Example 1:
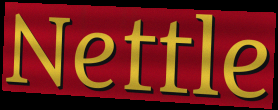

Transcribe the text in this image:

Nettle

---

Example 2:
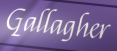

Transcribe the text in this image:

Gallagher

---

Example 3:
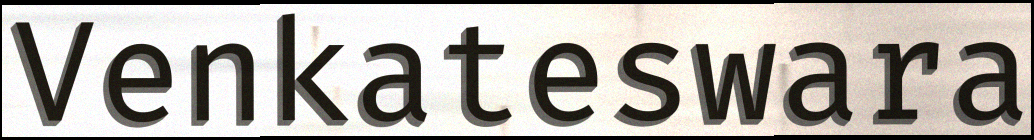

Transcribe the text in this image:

Venkateswara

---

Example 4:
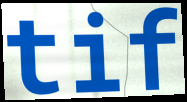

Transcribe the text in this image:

tif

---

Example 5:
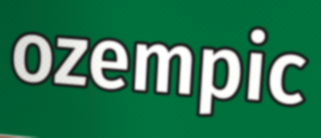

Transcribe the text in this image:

ozempic